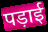
पड़ाई